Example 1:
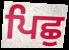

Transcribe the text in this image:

ਪਿਛੁ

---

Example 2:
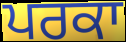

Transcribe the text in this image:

ਪਰਕਾ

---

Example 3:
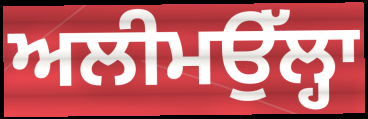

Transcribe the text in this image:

ਅਲੀਮਉੱਲ੍ਹਾ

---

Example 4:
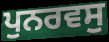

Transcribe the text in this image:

ਪੁਨਰਵਸੁ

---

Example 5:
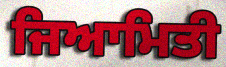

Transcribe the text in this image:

ਜਿਆਮਿਤੀ